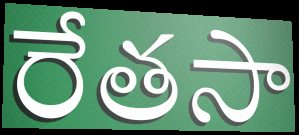
రేతసా